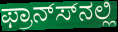
ಫ್ರಾನ್ಸ್‍ನಲ್ಲಿ